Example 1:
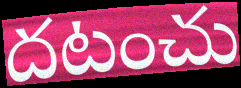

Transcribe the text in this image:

దటంచు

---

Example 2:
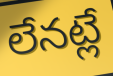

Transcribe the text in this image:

లేనట్లే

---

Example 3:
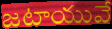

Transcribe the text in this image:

జటాయువే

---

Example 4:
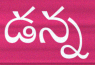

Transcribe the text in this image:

డన్న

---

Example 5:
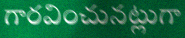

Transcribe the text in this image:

గారవించునట్లుగా